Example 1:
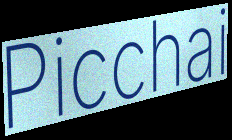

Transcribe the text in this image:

Picchai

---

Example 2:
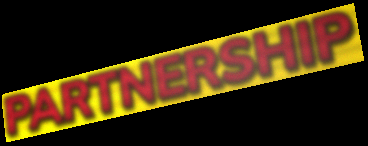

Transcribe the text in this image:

PARTNERSHIP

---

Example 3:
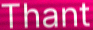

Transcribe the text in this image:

Thant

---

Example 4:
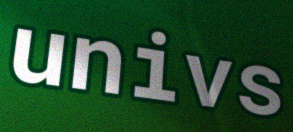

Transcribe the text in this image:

univs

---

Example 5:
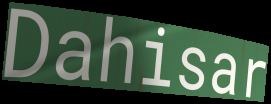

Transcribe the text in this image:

Dahisar